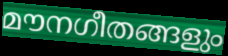
മൗനഗീതങ്ങളും